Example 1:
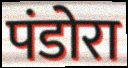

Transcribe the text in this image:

पंडोरा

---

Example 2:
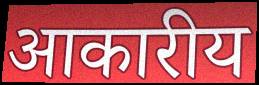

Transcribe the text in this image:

आकारीय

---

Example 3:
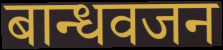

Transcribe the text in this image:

बान्धवजन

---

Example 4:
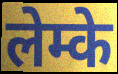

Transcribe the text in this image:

लेम्के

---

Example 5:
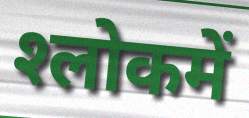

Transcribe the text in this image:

श्‍लोकमें